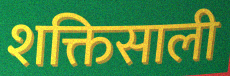
शक्तिसाली